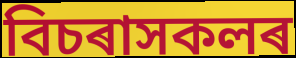
বিচৰাসকলৰ